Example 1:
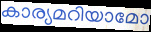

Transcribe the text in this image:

കാര്യമറിയാമോ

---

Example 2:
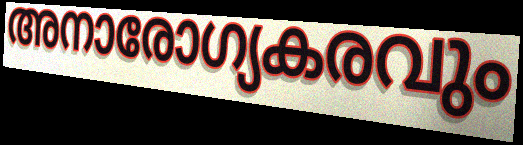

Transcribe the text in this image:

അനാരോഗ്യകരവും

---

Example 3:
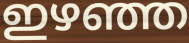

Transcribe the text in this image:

ഇഴഞ്ഞ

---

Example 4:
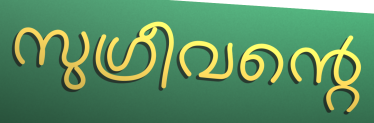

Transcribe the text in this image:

സുഗ്രീവന്റെ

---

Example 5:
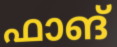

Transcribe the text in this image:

ഫാങ്